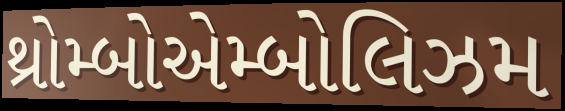
થ્રોમ્બોએમ્બોલિઝમ